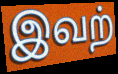
இவற்